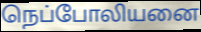
நெப்போலியனை